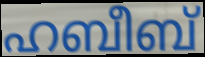
ഹബീബ്